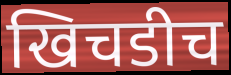
खिचडीच